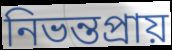
নিভন্তপ্রায়